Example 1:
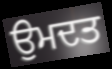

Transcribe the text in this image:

ਉਮਦਤ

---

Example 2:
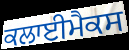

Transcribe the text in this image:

ਕਲਾਈਮੈਕਸ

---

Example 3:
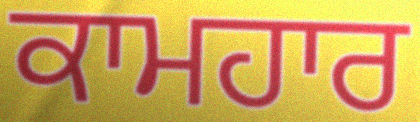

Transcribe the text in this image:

ਕਾਮਹਾਰ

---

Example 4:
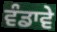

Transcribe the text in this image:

ਵੰਡਾਵੇ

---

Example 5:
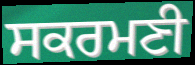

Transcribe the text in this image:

ਸਕਰਮਣੀ